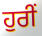
ਹੁਰੀਂ